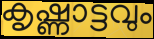
കൃഷ്ണാട്ടവും